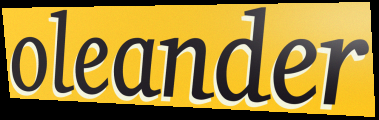
oleander